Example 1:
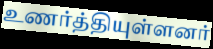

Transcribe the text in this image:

உணர்த்தியுள்ளனர்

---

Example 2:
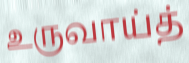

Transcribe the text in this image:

உருவாய்த்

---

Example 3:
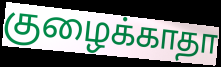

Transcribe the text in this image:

குழைக்காதா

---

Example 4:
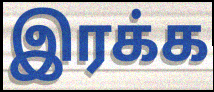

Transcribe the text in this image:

இரக்க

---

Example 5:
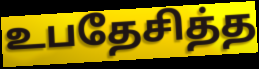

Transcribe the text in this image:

உபதேசித்த